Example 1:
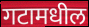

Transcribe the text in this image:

गटामधील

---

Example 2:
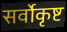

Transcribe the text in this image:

सर्वोकृष्ट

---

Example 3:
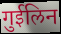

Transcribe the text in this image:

गुईलिन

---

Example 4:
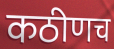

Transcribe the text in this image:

कठीणच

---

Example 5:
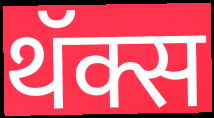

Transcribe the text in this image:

थॅक्स